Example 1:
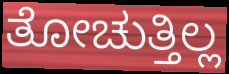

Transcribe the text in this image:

ತೋಚುತ್ತಿಲ್ಲ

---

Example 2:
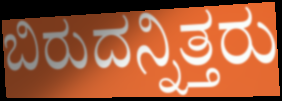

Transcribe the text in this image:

ಬಿರುದನ್ನಿತ್ತರು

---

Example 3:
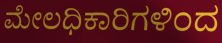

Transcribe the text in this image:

ಮೇಲಧಿಕಾರಿಗಳಿಂದ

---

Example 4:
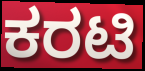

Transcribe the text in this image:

ಕರಟಿ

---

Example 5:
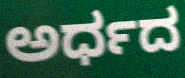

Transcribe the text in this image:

ಅರ್ಧದ